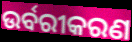
ଉର୍ବରୀକରଣ